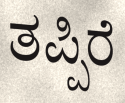
ತಪ್ಪಿರೆ